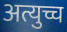
अत्युच्च